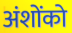
अंशोंको